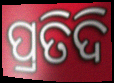
ପ୍ରତିଦି